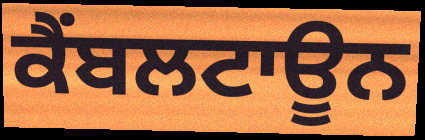
ਕੈਂਬਲਟਾਊਨ